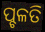
ପ୍ଚଳତି